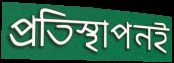
প্রতিস্থাপনই